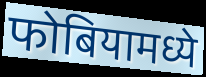
फोबियामध्ये